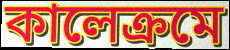
কালেক্রমে